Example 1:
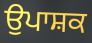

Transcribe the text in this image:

ਉਪਾਸ਼ਕ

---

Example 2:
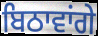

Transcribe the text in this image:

ਬਿਠਾਵਾਂਗੇ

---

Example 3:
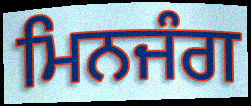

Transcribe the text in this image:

ਮਿਨਜੰਗ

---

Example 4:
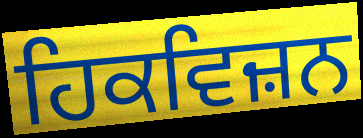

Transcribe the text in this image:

ਹਿਕਵਿਜ਼ਨ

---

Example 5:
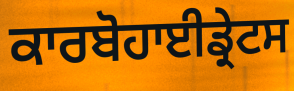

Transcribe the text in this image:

ਕਾਰਬੋਹਾਈਡ੍ਰੇਟਸ